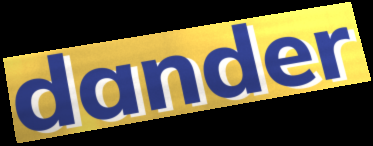
dander